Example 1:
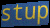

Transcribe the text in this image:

stup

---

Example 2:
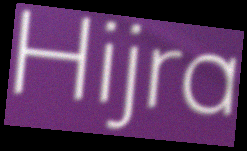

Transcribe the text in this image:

Hijra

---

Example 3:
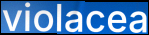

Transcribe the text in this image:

violacea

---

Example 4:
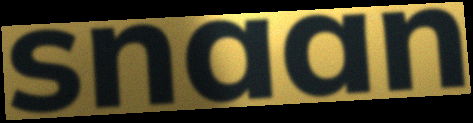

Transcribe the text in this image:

snaan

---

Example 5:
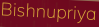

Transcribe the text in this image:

Bishnupriya